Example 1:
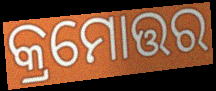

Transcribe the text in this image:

କ୍ରମୋତ୍ତର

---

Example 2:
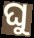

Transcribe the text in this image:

ଘୁ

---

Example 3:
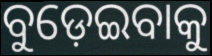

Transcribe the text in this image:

ବୁଡ଼େଇବାକୁ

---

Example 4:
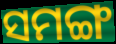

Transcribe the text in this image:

ସମଙ୍ଗ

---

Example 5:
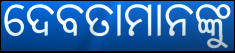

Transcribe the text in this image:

ଦେବତାମାନଙ୍କୁ